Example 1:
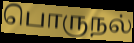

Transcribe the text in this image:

பொருநல்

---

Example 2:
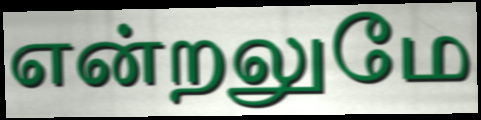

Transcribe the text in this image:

என்றலுமே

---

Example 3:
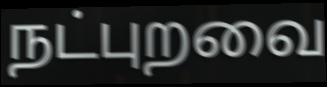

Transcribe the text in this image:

நட்புறவை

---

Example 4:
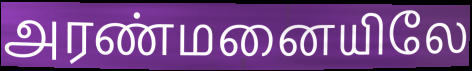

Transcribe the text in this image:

அரண்மனையிலே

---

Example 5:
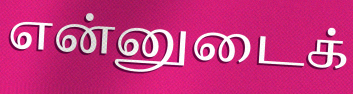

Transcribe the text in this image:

என்னுடைக்